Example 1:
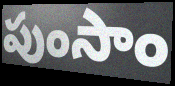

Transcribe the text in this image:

పుంసాం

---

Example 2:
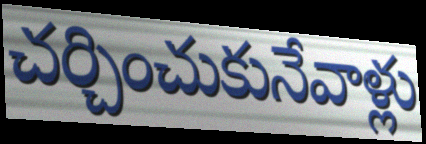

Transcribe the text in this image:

చర్చించుకునేవాళ్లు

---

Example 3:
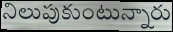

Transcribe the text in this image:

నిలుపుకుంటున్నారు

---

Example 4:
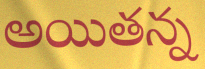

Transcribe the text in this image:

అయితన్న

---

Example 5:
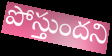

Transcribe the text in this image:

పోస్తుందని